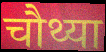
चौथ्या